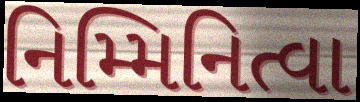
નિમ્મિનિત્વા